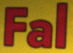
Fal